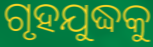
ଗୃହଯୁଦ୍ଧକୁ